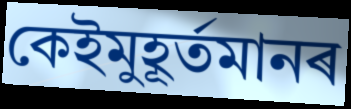
কেইমুহূৰ্তমানৰ